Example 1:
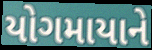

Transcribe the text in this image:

યોગમાયાને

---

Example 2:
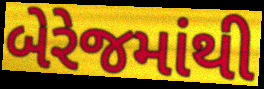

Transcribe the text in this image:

બેરેજમાંથી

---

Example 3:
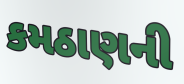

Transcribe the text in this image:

કમઠાણની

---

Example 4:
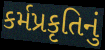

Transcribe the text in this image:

કર્મપ્રકૃતિનું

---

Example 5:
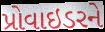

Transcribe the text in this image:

પ્રોવાઇડરને